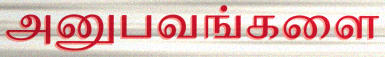
அனுபவங்களை